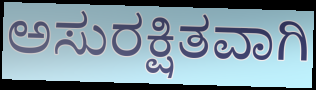
ಅಸುರಕ್ಷಿತವಾಗಿ